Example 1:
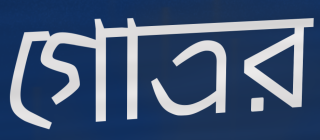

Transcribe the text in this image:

গোত্রর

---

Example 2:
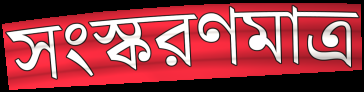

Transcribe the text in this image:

সংস্করণমাত্র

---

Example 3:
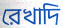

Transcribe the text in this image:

রেখাদি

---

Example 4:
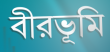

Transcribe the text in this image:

বীরভূমি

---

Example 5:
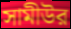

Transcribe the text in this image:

সামীউর